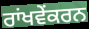
ਰਾਂਖਵੇਂਕਰਨ